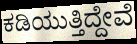
ಕಡಿಯುತ್ತಿದ್ದೇವೆ